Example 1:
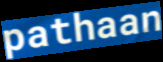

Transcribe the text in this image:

pathaan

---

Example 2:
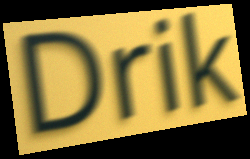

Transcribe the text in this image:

Drik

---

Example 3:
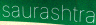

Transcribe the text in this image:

saurashtra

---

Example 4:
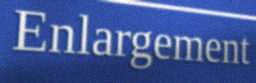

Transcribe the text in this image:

Enlargement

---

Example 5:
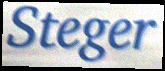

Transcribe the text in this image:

Steger